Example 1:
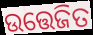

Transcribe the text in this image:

ଉତ୍ତେଜିତ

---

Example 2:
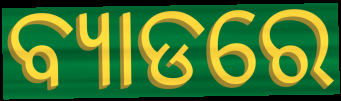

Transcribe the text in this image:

ବ୍ୟାଡରେ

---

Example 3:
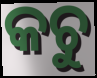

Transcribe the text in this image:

କଚୁ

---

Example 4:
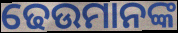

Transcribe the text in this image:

ଢେଉମାନଙ୍କ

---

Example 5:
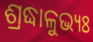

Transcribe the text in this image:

ଶ୍ରଦ୍ଧାଳୁଭ୍ୟଃ